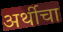
अर्थीचा